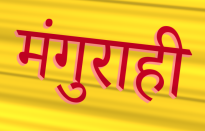
मंगुराही